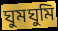
ঘুমঘুমি